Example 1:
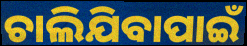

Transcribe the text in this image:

ଚାଲିଯିବାପାଇଁ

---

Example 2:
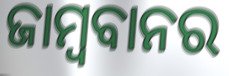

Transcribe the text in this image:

ଜାମ୍ବବାନର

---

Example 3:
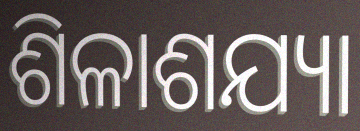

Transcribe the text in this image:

ଶିଳାଶଯ୍ୟା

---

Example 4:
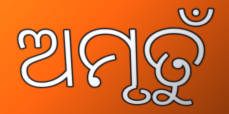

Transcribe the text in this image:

ଅମୃତୁଁ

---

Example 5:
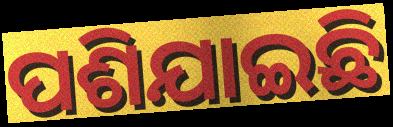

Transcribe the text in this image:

ପଶିଯାଇଛି